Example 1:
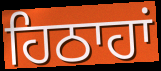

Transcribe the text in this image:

ਹਿਠਾਹਾਂ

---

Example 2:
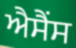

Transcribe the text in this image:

ਐਸੈਂਸ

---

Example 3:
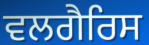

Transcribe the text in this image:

ਵਲਗੈਰਿਸ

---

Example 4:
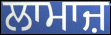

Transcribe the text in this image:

ਲਾਮਾਜ਼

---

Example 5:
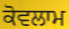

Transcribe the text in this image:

ਕੋਵਲਾਮ